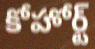
కోహోర్ట్